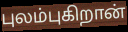
புலம்புகிறான்